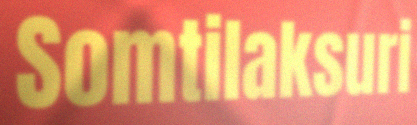
Somtilaksuri